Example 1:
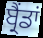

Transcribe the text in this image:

ਬ੍ਰੈਂਡਾਂ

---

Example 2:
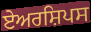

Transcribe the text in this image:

ਏਅਰਸ਼ਿਪਸ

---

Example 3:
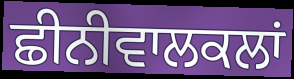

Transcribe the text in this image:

ਛੀਨੀਵਾਲਕਲਾਂ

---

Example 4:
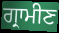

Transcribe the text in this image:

ਗ੍ਰਾਮੀਣ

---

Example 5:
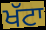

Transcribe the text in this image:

ਖੱਟਾ